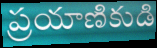
ప్రయాణికుడి